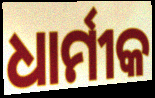
ଧାର୍ମୀକ